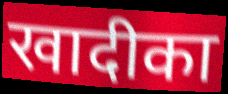
खादीका